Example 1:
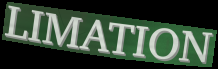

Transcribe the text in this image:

LIMATION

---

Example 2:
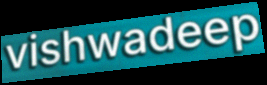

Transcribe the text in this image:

vishwadeep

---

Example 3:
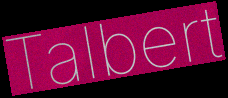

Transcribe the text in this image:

Talbert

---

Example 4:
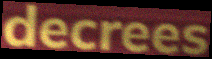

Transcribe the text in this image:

decrees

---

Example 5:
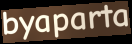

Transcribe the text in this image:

byaparta